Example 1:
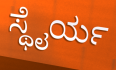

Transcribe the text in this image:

ಸ್ಥೈರ್ಯ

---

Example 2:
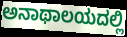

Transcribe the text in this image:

ಅನಾಥಾಲಯದಲ್ಲಿ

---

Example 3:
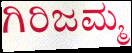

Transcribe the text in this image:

ಗಿರಿಜಮ್ಮ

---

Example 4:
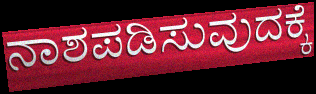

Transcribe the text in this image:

ನಾಶಪಡಿಸುವುದಕ್ಕೆ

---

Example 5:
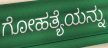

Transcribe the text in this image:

ಗೋಹತ್ಯೆಯನ್ನು